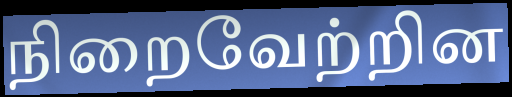
நிறைவேற்றின